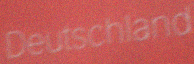
Deutschland